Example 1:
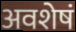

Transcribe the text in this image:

अवशेषं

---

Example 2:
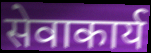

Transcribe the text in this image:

सेवाकार्य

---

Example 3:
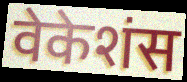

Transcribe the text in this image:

वेकेशंस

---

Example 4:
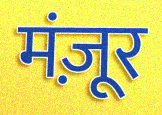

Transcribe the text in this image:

मंज़ूर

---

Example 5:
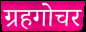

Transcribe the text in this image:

ग्रहगोचर